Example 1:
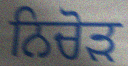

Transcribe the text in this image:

ਨਿਚੋਡ਼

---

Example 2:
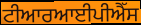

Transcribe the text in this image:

ਟੀਆਰਆਈਪੀਐੱਸ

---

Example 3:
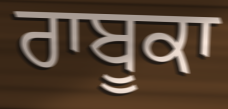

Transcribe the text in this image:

ਰਾਬੂਕਾ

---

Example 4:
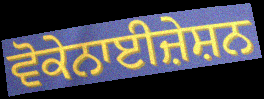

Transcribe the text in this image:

ਵੋਕੇਨਾਈਜ਼ੇਸ਼ਨ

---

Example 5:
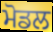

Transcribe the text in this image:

ਮੋਡਲ